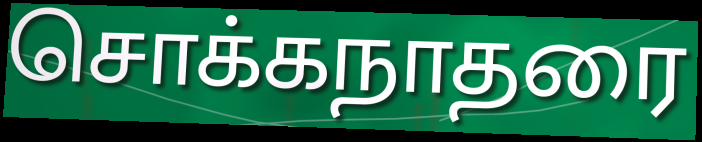
சொக்கநாதரை